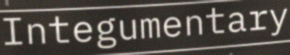
Integumentary